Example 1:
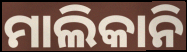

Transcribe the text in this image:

ମାଲିକାନି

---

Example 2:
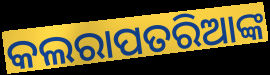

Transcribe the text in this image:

କଲରାପତରିଆଙ୍କ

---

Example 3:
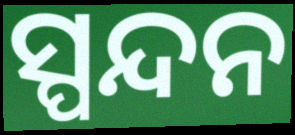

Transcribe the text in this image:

ସ୍ପନ୍ଦନ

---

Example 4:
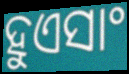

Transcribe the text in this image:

ହୁଏସାଂ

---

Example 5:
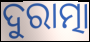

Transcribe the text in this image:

ଦୁରାତ୍ମା